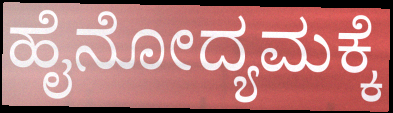
ಹೈನೋದ್ಯಮಕ್ಕೆ